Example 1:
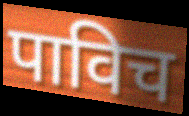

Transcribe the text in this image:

पाविच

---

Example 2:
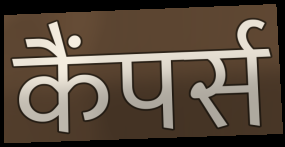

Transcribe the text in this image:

कैंपर्स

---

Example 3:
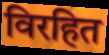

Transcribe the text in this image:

विरहित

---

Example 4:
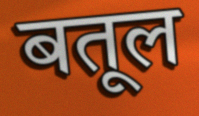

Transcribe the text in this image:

बतूल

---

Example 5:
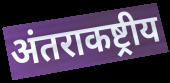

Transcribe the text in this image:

अंतराकष्ट्रीय